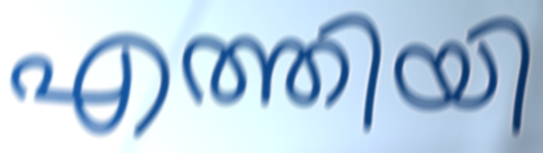
എത്തിയി